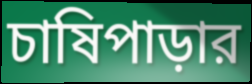
চাষিপাড়ার